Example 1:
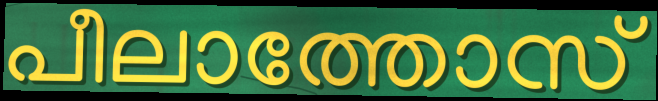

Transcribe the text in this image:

പീലാത്തോസ്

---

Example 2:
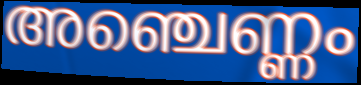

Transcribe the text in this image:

അഞ്ചെണ്ണം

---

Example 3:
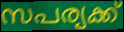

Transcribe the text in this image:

സപര്യക്ക്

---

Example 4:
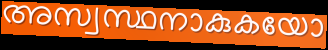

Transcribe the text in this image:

അസ്വസ്ഥനാകുകയോ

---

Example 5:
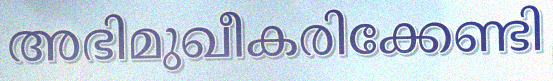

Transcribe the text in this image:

അഭിമുഖീകരിക്കേണ്ടി